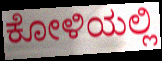
ಕೋಳಿಯಲ್ಲಿ